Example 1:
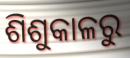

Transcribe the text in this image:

ଶିଶୁକାଳରୁ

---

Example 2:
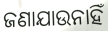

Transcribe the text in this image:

ଜଣାଯାଉନାହିଁ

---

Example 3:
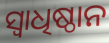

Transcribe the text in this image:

ସ୍ୱାଧିଷ୍ଠାନ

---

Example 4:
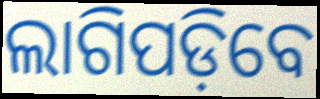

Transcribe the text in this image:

ଲାଗିପଡ଼ିବେ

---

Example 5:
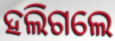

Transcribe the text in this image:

ହଲିଗଲେ